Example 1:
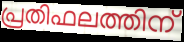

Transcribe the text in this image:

പ്രതിഫലത്തിന്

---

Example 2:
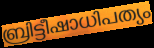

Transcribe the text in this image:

ബ്രിട്ടീഷാധിപത്യം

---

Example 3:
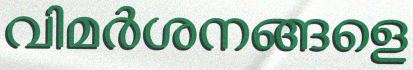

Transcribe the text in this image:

വിമർശനങ്ങളെ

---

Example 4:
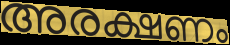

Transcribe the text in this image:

അരക്ഷണം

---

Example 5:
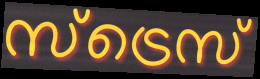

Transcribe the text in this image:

സ്ട്രെസ്